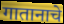
गातानाचे